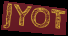
JYOT